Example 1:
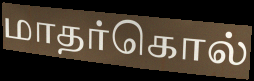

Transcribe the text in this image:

மாதர்கொல்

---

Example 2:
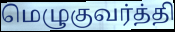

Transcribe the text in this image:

மெழுகுவர்த்தி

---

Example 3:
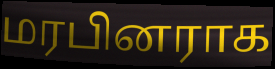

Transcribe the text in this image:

மரபினராக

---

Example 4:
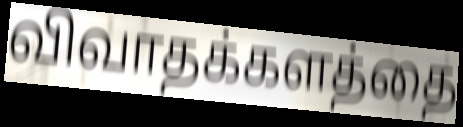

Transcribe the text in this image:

விவாதக்களத்தை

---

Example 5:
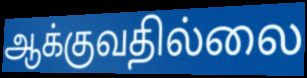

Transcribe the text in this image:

ஆக்குவதில்லை